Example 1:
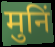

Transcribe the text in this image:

मुनिं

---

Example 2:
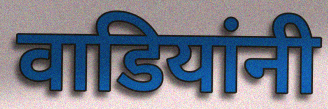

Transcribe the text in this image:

वाडियांनी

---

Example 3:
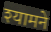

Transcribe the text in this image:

श्यामने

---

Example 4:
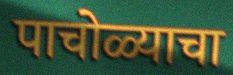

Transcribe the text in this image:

पाचोळ्याचा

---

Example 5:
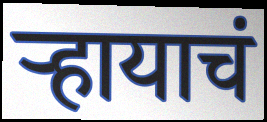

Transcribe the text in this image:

ऱ्हायाचं